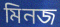
মিনজ